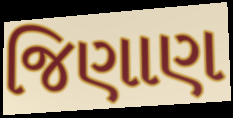
જિણાણ